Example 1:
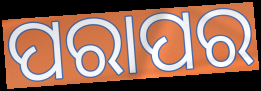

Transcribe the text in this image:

ପରାପର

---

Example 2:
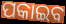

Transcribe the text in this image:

ପକାଇବ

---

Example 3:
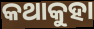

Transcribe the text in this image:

କଥାକୁହା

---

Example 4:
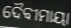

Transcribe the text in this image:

ଦୈବୀମାୟା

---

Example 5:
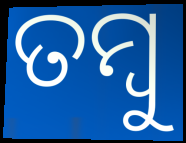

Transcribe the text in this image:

ତମ୍ବୁ